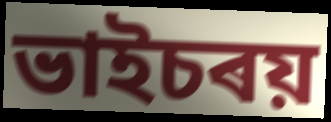
ভাইচৰয়